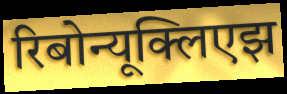
रिबोन्यूक्लिएझ